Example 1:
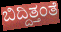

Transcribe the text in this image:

ಬಿದ್ದಿತ್ತಂತೆ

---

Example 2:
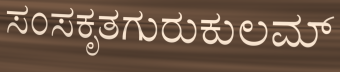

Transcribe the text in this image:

ಸಂಸಕೃತಗುರುಕುಲಮ್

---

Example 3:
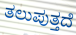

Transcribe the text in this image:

ತಲುಪುತ್ತದೆ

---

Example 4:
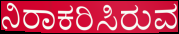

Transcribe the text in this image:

ನಿರಾಕರಿಸಿರುವ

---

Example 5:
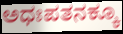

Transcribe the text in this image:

ಅಧಃಪತನಕ್ಕೂ